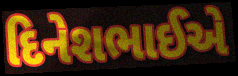
દિનેશભાઈએ